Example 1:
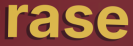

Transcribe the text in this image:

rase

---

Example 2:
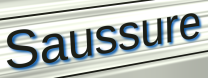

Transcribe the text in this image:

Saussure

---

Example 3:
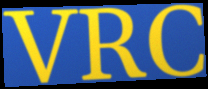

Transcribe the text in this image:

VRC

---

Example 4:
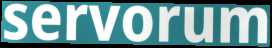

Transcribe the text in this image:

servorum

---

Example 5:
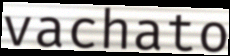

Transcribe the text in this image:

vachato